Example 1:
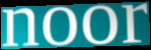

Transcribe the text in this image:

noor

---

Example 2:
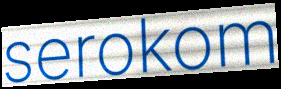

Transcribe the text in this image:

serokom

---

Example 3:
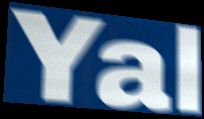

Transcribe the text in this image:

Yal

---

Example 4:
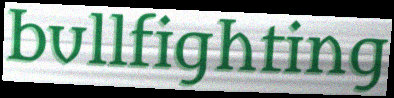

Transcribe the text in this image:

bullfighting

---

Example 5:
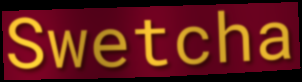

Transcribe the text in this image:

Swetcha